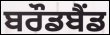
ਬਰੌਡਬੈਂਡ